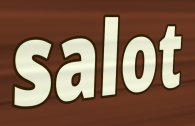
salot